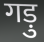
गड़ु